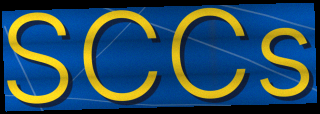
SCCs